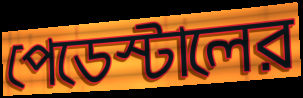
পেডেস্টালের